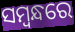
ସମ୍ୱନ୍ଧରେ